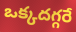
ఒక్కదగ్గరే